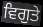
ਵਿਗੁਤੇ